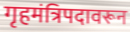
गृहमंत्रिपदावरून